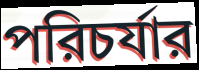
পরিচর্যার